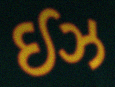
ઈઝ